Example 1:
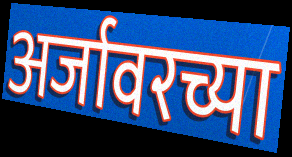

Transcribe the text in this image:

अर्जावरच्या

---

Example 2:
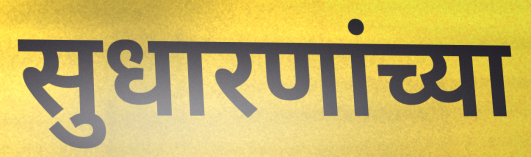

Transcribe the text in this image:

सुधारणांच्या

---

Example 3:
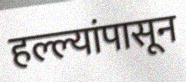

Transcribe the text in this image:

हल्ल्यांपासून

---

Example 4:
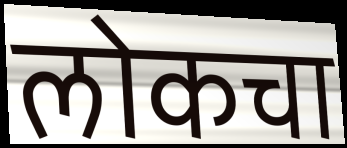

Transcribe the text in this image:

लोकचा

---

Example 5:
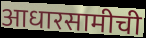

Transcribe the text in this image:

आधारसामीची